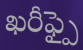
ఖరీఫ్పై